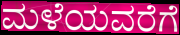
ಮಳೆಯವರೆಗೆ